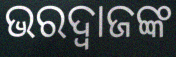
ଭରଦ୍ବାଜଙ୍କ